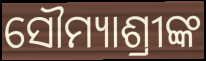
ସୌମ୍ୟାଶ୍ରୀଙ୍କ